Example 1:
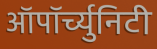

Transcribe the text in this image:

ऑपॉर्च्युनिटी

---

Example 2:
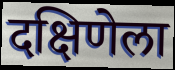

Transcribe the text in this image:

दक्षिणेला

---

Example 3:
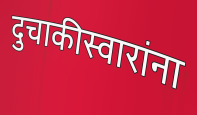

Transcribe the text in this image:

दुचाकीस्वारांना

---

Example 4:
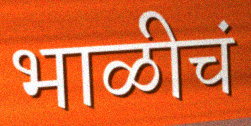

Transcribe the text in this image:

भाळीचं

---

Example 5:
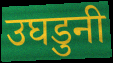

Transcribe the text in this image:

उघडुनी